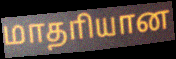
மாதரியான